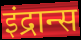
इंद्रान्स